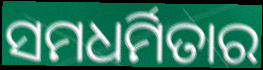
ସମଧର୍ମିତାର